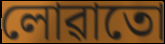
লোৱাতো